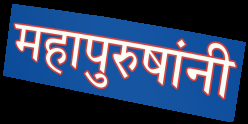
महापुरुषांनी